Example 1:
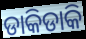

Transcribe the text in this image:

ଡାକିଡାକି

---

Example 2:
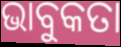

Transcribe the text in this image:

ଭାବୁକତା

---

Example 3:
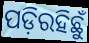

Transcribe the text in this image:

ପଡ଼ିରହିଛୁଁ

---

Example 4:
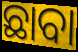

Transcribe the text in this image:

ଛାବା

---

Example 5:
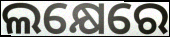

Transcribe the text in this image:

ଲକ୍ଷେରେ